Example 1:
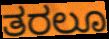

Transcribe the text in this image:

ತರಲೂ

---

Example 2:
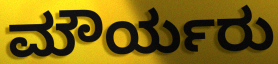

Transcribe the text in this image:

ಮೌರ್ಯರು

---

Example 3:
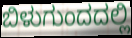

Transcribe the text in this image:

ಬಿಳುಗುಂದದಲ್ಲಿ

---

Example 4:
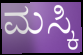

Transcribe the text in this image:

ಮಸ್ಕಿ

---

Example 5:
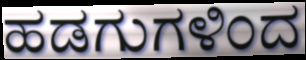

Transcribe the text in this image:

ಹಡಗುಗಳಿಂದ